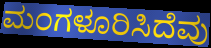
ಮಂಗಳೂರಿಸಿದೆವು